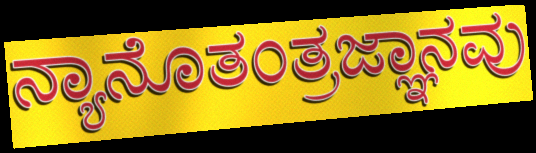
ನ್ಯಾನೊತಂತ್ರಜ್ಞಾನವು